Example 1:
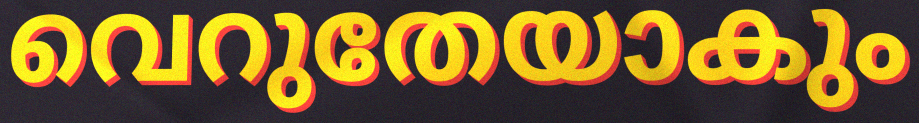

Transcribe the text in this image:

വെറുതേയാകും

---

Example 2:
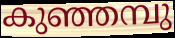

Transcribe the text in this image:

കുഞ്ഞമ്പു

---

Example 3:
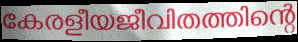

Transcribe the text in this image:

കേരളീയജീവിതത്തിന്റെ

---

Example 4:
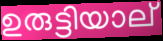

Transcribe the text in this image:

ഉരുട്ടിയാല്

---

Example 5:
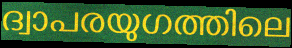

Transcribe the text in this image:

ദ്വാപരയുഗത്തിലെ